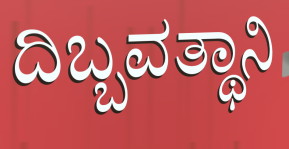
ದಿಬ್ಬವತ್ಥಾನಿ